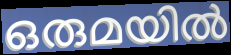
ഒരുമയിൽ